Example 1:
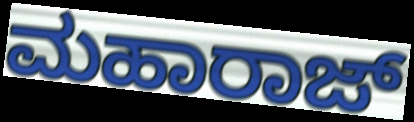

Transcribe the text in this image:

ಮಹಾರಾಜ್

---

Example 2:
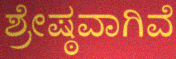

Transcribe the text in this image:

ಶ್ರೇಷ್ಠವಾಗಿವೆ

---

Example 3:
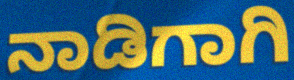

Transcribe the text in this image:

ನಾಡಿಗಾಗಿ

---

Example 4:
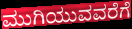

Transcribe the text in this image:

ಮುಗಿಯುವವರೆಗೆ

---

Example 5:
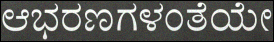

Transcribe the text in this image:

ಆಭರಣಗಳಂತೆಯೇ